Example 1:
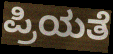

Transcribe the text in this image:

ಪ್ರಿಯತೆ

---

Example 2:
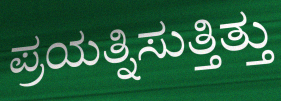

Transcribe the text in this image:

ಪ್ರಯತ್ನಿಸುತ್ತಿತ್ತು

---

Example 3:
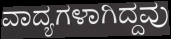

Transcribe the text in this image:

ವಾದ್ಯಗಳಾಗಿದ್ದವು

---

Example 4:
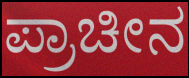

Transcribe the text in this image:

ಪ್ರಾಚೀನ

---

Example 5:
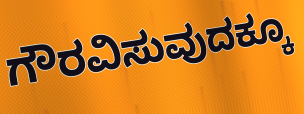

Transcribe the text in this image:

ಗೌರವಿಸುವುದಕ್ಕೂ